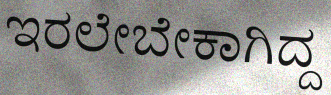
ಇರಲೇಬೇಕಾಗಿದ್ದ